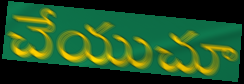
చేయుచూ